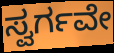
ಸ್ವರ್ಗವೇ